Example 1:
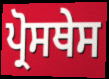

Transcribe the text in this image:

ਪ੍ਰੋਸਥੇਸ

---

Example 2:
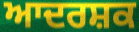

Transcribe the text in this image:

ਆਦਰਸ਼ਕ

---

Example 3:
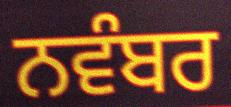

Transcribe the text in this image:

ਨਵੰਬਰ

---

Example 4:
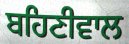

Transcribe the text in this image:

ਬਹਿਣੀਵਾਲ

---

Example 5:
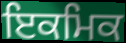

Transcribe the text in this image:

ਇਕਮਿਕ